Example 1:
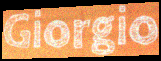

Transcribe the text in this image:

Giorgio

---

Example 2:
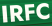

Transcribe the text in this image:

IRFC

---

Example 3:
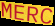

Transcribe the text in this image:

MERC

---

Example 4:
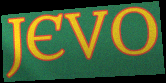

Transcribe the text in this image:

JEVO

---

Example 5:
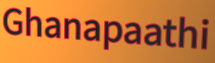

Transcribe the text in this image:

Ghanapaathi